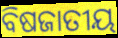
ବିଷଜାତୀୟ